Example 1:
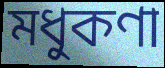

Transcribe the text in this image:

মধুকণা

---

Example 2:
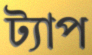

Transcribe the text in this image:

ট্যাপ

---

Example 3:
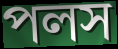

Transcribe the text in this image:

পলস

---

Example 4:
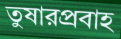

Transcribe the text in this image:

তুষারপ্রবাহ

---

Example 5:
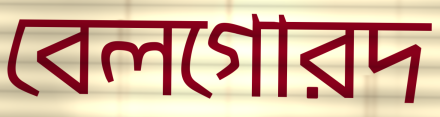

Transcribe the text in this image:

বেলগোরদ